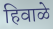
हिवाळे